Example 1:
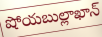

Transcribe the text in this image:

షోయబుల్లాఖాన్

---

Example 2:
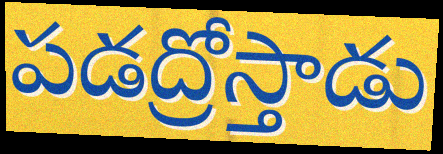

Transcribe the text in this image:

పడద్రోస్తాడు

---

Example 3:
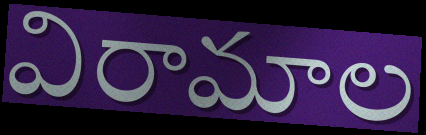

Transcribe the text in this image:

విరామాల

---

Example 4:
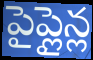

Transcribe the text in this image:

పైప్లైన్ల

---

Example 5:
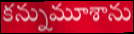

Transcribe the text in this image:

కన్నుమూశాను